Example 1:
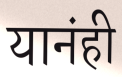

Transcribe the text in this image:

यानंही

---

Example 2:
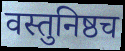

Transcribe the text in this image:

वस्तुनिष्ठच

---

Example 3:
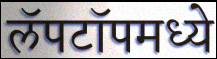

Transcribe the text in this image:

लॅपटॉपमध्ये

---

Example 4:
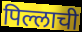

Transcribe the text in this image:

पिल्लाची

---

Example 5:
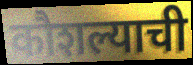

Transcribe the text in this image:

कौशल्याची